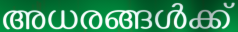
അധരങ്ങൾക്ക്